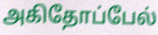
அகிதோப்பேல்